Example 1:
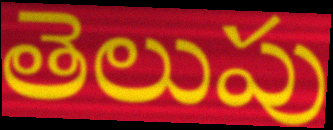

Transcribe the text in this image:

తెలుపు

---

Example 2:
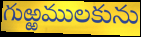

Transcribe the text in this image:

గుఱ్ఱములకును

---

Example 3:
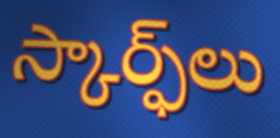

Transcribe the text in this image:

స్కార్ఫ్‌లు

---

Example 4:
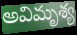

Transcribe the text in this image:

అవిమృశ్య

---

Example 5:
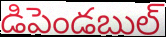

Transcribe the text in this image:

డిపెండబుల్